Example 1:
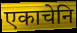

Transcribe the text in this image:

एकाचेनि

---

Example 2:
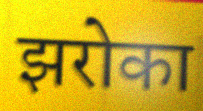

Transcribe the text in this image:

झरोका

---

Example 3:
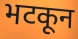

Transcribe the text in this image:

भटकून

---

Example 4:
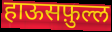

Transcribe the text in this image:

हाऊसफ़ुल्ल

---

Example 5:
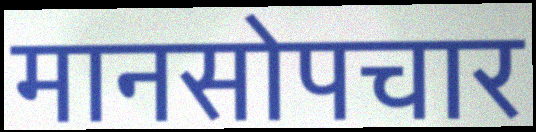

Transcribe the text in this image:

मानसोपचार